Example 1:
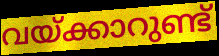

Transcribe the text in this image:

വയ്ക്കാറുണ്ട്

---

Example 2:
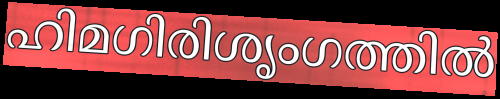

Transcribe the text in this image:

ഹിമഗിരിശൃംഗത്തിൽ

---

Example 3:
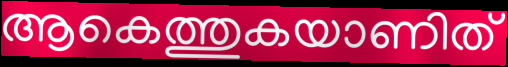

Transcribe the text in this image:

ആകെത്തുകയാണിത്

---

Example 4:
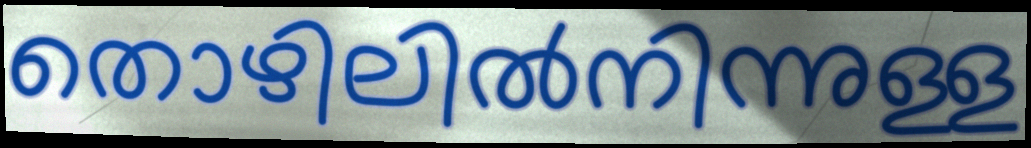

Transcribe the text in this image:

തൊഴിലിൽനിന്നുള്ള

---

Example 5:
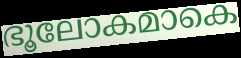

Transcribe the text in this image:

ഭൂലോകമാകെ